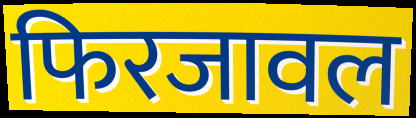
फिरजावल